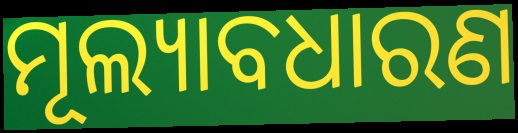
ମୂଲ୍ୟାବଧାରଣ